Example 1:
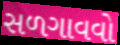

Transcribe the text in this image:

સળગાવવો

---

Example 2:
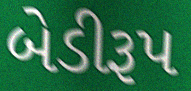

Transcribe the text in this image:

બેડીરૂપ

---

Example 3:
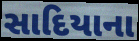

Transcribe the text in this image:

સાદિયાના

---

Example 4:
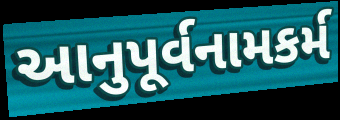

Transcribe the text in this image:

આનુપૂર્વનામકર્મ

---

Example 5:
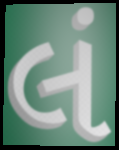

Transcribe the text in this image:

લં